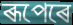
ৰূপেৰে